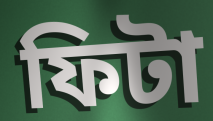
ফিটা